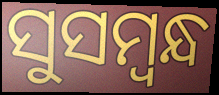
ସୁସମ୍ବନ୍ଧ